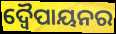
ଦ୍ୱୈପାୟନର